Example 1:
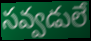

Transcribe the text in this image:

సవ్వడులే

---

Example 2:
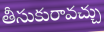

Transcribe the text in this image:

తీసుకురావచ్చు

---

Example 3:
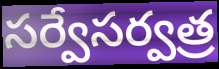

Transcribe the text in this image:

సర్వేసర్వత్ర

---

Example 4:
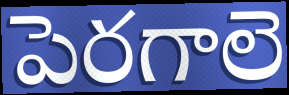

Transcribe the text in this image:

పెరగాలె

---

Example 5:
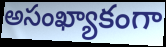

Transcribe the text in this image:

అసంఖ్యాకంగా